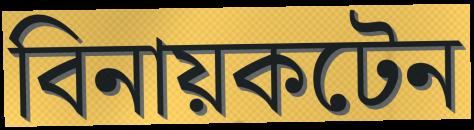
বিনায়কটেন